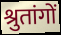
श्रुतांगों